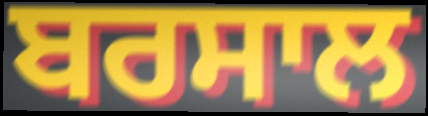
ਬਰਸਾਲ